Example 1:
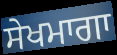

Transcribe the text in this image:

ਸੇਖਮਾਗਾ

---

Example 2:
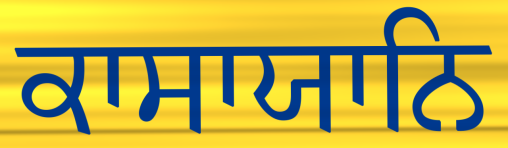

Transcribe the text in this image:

ਕਾਸਾਯਾਨਿ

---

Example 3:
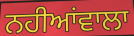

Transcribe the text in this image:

ਨਹੀਆਂਵਾਲਾ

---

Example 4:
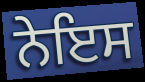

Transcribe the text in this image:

ਨੇਇਸ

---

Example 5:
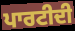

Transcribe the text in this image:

ਪਾਰਟੀਦੀ